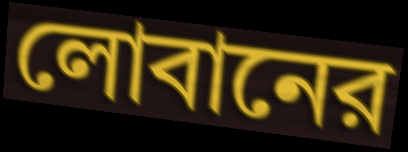
লোবানের